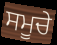
ਸਮੂਚੇ